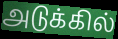
அடுக்கில்